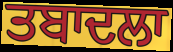
ਤਬਾਦਲਾ